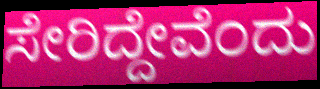
ಸೇರಿದ್ದೇವೆಂದು